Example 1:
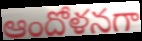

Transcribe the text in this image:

ఆందోళనగా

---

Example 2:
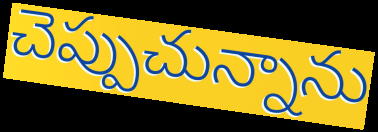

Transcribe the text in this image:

చెప్పుచున్నాను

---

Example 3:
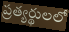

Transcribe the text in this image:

ప్రత్యర్థులలో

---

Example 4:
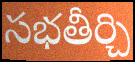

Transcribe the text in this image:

సభతీర్చి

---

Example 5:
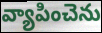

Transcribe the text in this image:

వ్యాపించెను